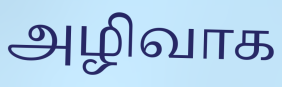
அழிவாக